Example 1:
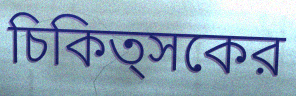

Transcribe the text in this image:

চিকিত্সকের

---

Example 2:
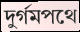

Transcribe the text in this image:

দুর্গমপথে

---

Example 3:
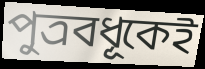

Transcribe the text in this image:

পুত্রবধূকেই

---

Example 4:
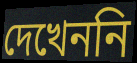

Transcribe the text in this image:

দেখেননি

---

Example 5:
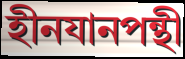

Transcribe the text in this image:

হীনযানপন্থী